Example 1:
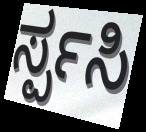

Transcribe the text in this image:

ರ್ಸ್ಪಸಿ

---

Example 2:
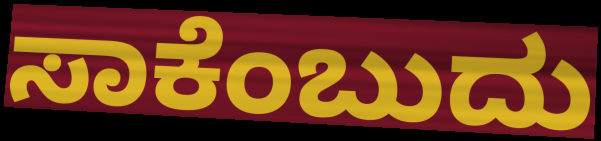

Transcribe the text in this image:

ಸಾಕೆಂಬುದು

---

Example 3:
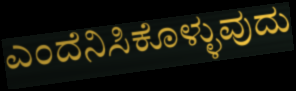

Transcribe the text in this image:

ಎಂದೆನಿಸಿಕೊಳ್ಳುವುದು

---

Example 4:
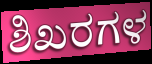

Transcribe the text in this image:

ಶಿಖರಗಳ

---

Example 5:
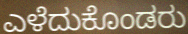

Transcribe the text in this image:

ಎಳೆದುಕೊಂಡರು